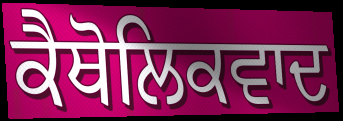
ਕੈਥੋਲਿਕਵਾਦ